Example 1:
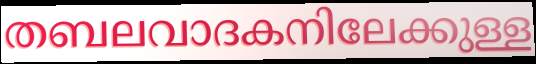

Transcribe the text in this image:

തബലവാദകനിലേക്കുള്ള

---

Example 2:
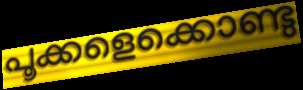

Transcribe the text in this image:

പൂക്കളെക്കൊണ്ടു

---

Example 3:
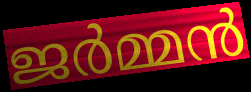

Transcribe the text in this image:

ജർമ്മൻ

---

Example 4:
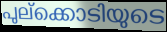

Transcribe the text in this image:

പുല്ക്കൊടിയുടെ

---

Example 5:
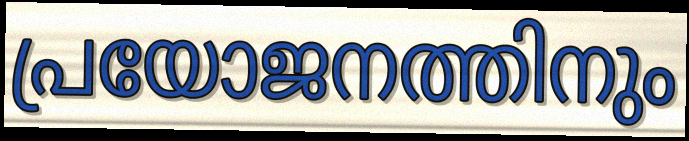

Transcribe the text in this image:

പ്രയോജനത്തിനും